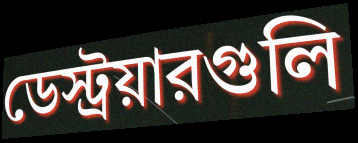
ডেস্ট্রয়ারগুলি